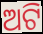
ଅଟି